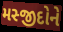
મસ્જીદોને